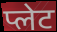
प्लेट